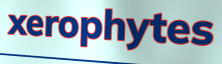
xerophytes